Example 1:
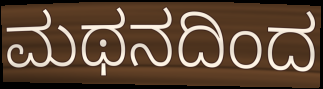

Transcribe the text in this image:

ಮಥನದಿಂದ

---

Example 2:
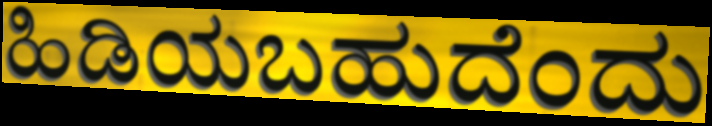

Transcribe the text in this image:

ಹಿಡಿಯಬಹುದೆಂದು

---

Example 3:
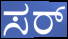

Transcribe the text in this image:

ಸರ್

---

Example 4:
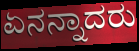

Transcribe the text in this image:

ಏನನ್ನಾದರು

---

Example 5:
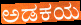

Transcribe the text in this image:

ಅಡಕಯ